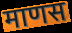
माणस